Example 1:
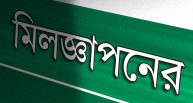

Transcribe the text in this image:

মিলজ্ঞাপনের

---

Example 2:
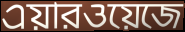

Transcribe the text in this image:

এয়ারওয়েজে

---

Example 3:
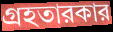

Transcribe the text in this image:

গ্রহতারকার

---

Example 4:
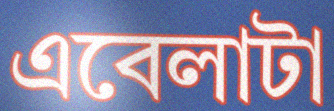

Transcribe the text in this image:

এবেলাটা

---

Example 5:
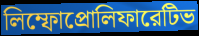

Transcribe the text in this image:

লিম্ফোপ্রোলিফারেটিভ